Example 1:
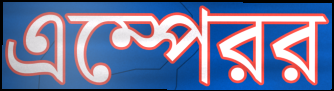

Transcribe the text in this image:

এম্পেরর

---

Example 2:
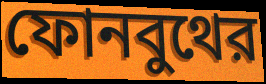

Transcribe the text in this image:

ফোনবুথের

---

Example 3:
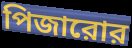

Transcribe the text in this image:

পিজারোর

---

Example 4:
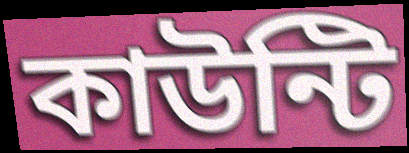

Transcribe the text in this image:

কাউন্টি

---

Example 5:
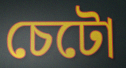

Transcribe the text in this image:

চেটো